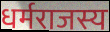
धर्मराजस्य